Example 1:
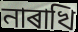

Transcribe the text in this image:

নাৰাখি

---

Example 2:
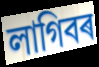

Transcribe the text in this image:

লাগিবৰ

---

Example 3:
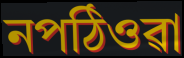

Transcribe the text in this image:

নপঠিওৱা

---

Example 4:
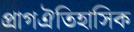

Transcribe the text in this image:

প্ৰাগঐতিহাসিক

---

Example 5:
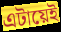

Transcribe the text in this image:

এটায়েই